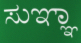
ಸುಞ್ಞಾ